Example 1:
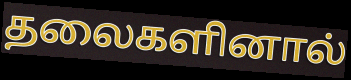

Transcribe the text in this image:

தலைகளினால்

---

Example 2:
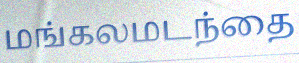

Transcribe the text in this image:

மங்கலமடந்தை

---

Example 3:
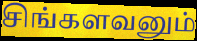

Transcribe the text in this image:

சிங்களவனும்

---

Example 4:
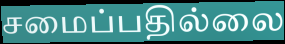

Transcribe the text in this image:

சமைப்பதில்லை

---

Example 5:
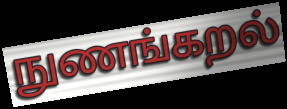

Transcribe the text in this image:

நுணங்கறல்